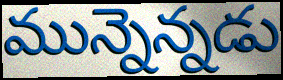
మున్నెన్నడు